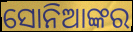
ସୋନିଆଙ୍କର